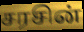
சரசின்